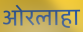
ओरलाहा